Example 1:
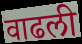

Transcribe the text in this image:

वाढली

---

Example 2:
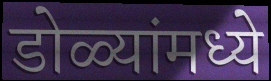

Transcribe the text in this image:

डोळ्यांमध्ये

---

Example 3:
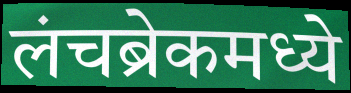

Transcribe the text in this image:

लंचब्रेकमध्ये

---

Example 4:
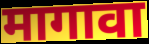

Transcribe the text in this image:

मागावा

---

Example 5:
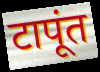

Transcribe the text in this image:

टापूंत